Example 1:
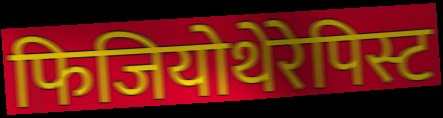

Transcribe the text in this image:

फिजियोथेरेपिस्ट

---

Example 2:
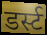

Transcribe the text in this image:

डर्स्ट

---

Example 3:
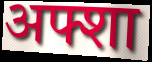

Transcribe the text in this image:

अफ्शा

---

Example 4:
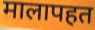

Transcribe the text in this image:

मालापहत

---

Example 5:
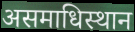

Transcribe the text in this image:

असमाधिस्थान